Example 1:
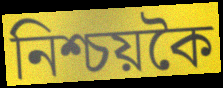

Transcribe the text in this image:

নিশ্চয়কৈ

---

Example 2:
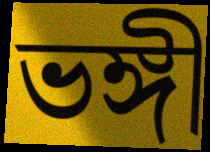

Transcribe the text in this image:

ভঙ্গী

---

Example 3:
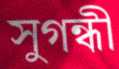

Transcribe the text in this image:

সুগন্ধী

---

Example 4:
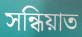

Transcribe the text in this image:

সন্ধিয়াত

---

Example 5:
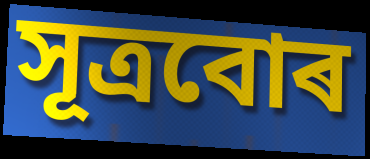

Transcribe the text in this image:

সূত্ৰবোৰ